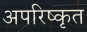
अपरिष्कृत